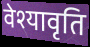
वेश्यावृति